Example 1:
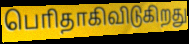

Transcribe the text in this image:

பெரிதாகிவிடுகிறது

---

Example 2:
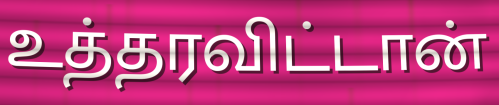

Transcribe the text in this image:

உத்தரவிட்டான்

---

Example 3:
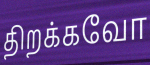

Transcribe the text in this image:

திறக்கவோ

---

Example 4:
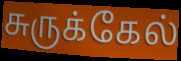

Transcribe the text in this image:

சுருக்கேல்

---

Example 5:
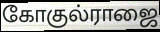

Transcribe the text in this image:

கோகுல்ராஜை